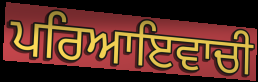
ਪਰਿਆਇਵਾਚੀ